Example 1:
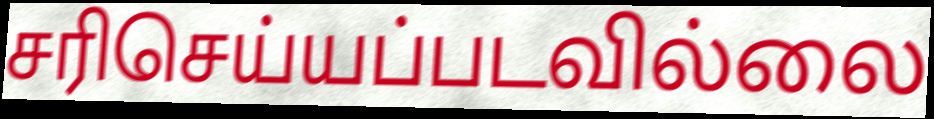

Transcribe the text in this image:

சரிசெய்யப்படவில்லை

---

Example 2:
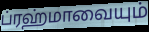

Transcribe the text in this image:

ப்ரஹ்மாவையும்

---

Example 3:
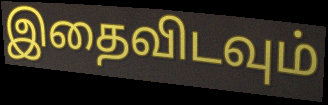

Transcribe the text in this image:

இதைவிடவும்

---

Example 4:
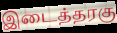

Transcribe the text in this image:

இடைத்தரகு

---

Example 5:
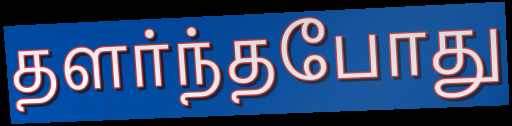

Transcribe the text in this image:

தளர்ந்தபோது